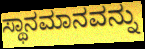
ಸ್ಥಾನಮಾನವನ್ನು